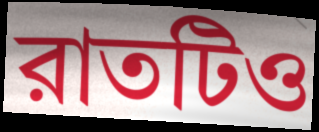
রাতটিও